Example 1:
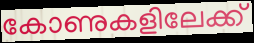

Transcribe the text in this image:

കോണുകളിലേക്ക്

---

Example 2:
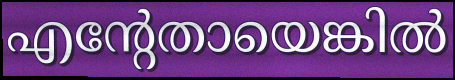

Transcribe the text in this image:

എന്റേതായെങ്കിൽ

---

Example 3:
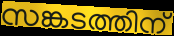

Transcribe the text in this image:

സങ്കടത്തിന്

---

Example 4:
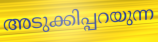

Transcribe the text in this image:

അടുക്കിപ്പറയുന്ന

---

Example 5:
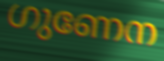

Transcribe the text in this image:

ഗുണേന